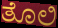
ತೊಲಿ